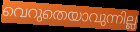
വെറുതെയാവുന്നില്ല